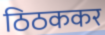
ठिठककर